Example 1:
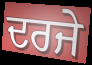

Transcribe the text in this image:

ਦਰਜੇ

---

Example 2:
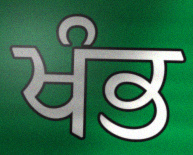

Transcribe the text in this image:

ਖੰਭ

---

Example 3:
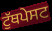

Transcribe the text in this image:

ਟੁੱਥਪੇਸਟ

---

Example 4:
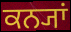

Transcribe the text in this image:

ਕਨ੍ਯਾਂ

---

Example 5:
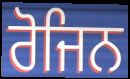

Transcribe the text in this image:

ਰੋਜਿਨ